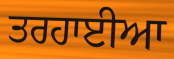
ਤਰਹਾਈਆ